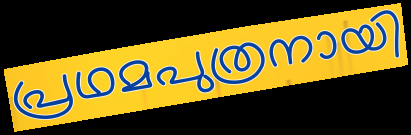
പ്രഥമപുത്രനായി